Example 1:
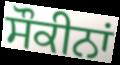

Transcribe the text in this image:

ਸੌਕੀਨਾਂ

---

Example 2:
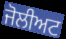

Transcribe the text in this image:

ਜੋਲੀਅਟ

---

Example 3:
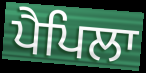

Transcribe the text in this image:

ਪੈਪਿਲਾ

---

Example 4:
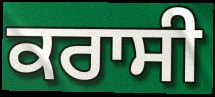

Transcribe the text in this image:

ਕਰਾਸੀ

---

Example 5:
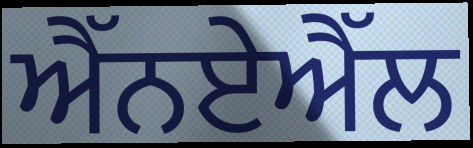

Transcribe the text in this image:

ਐੱਨਏਐੱਲ